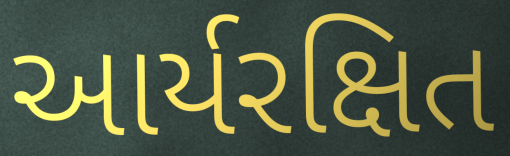
આર્યરક્ષિત